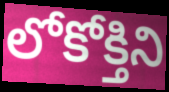
లోకోక్తిని